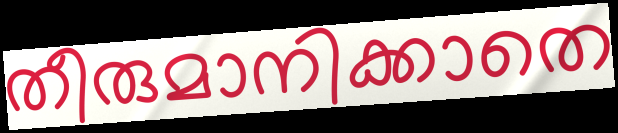
തീരുമാനിക്കാതെ